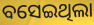
ବସେଇଥିଲା